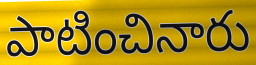
పాటించినారు